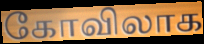
கோவிலாக